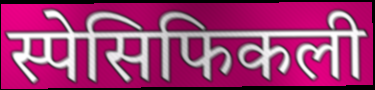
स्पेसिफिकली